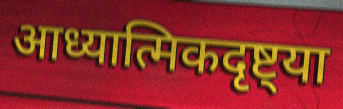
आध्यात्मिकदृष्ट्या